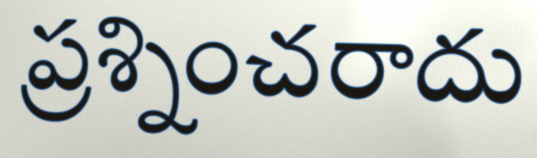
ప్రశ్నించరాదు